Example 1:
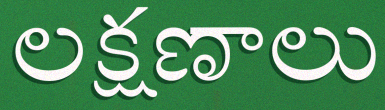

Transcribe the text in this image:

లక్షణాలు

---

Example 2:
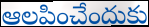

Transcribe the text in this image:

ఆలపించేందుకు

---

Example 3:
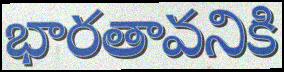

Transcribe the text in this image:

భారతావనికి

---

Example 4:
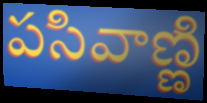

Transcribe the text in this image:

పసివాణ్ణి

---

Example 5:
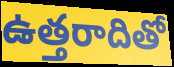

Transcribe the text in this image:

ఉత్తరాదితో